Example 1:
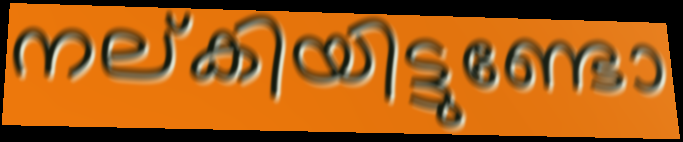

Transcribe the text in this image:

നല്കിയിട്ടുണ്ടോ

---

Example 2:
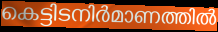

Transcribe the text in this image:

കെട്ടിടനിർമാണത്തിൽ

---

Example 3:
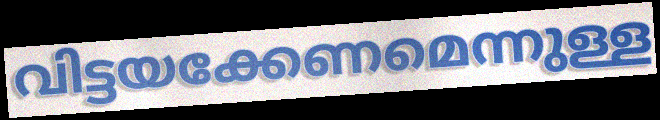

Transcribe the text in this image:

വിട്ടയക്കേണമെന്നുള്ള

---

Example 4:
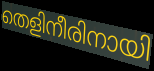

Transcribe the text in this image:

തെളിനീരിനായി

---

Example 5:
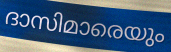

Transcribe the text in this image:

ദാസിമാരെയും